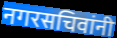
नगरसचिवांनी